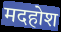
मदहोश